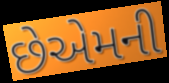
છેએમની